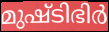
മുഷ്ടിഭിർ